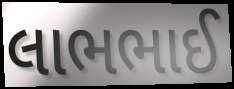
લાભભાઈ